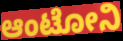
ಆಂಟೋನಿ